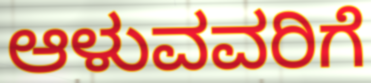
ಆಳುವವರಿಗೆ